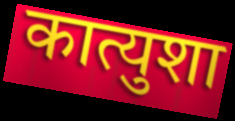
कात्युशा